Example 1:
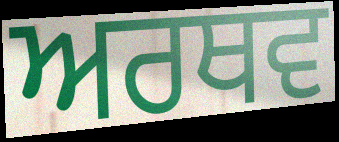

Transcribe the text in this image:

ਅਰਥਵ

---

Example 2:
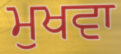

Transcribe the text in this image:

ਮੁਖਵਾ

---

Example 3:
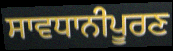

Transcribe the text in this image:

ਸਾਵਧਾਨੀਪੂਰਣ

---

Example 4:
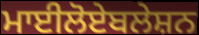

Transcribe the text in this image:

ਮਾਈਲੋਏਬਲੇਸ਼ਨ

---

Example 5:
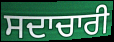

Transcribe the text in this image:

ਸਦਾਚਾਰੀ